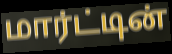
மார்ட்டின்